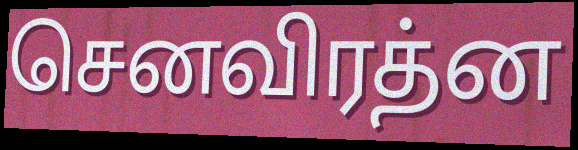
செனவிரத்ன